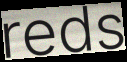
reds